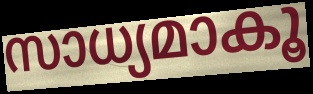
സാധ്യമാകൂ